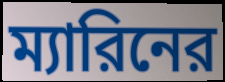
ম্যারিনের